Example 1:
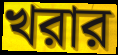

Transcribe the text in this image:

খরার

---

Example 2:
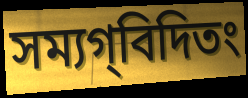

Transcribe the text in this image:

সম্যগ্‌বিদিতং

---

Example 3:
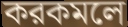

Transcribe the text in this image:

করকমলে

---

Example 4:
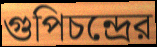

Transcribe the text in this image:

গুপিচন্দ্রের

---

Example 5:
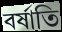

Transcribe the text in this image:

বর্ষাতি